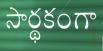
సార్థకంగా